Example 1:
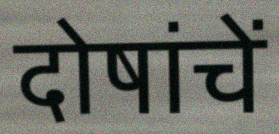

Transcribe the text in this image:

दोषांचें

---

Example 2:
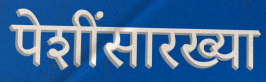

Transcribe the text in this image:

पेशींसारख्या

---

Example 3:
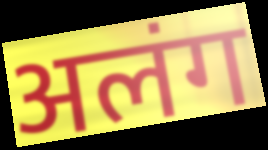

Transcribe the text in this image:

अलंग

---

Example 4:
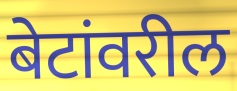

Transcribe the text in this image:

बेटांवरील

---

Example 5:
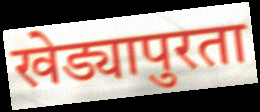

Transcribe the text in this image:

खेड्यापुरता